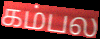
கம்பல